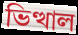
ভিত্থাল